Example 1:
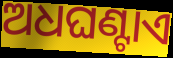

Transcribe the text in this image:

ଅଧଘଣ୍ଟାଏ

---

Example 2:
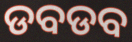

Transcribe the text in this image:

ଡବଡବ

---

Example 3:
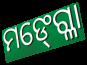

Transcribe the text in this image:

ମଙ୍ଗ୍ଳୋ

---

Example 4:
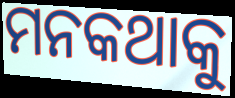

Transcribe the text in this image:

ମନକଥାକୁ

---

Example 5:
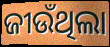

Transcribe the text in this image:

ଜୀଉଁଥିଲା